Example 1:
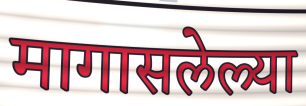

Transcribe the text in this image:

मागासलेल्या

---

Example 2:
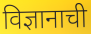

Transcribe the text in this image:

विज्ञानाची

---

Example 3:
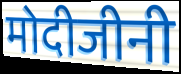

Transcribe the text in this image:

मोदीजीनी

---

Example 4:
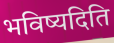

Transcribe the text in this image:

भविष्यदिति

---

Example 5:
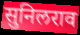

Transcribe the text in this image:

सुनिलराव